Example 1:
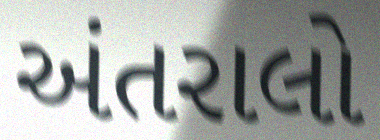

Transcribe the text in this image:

અંતરાલો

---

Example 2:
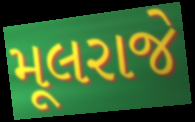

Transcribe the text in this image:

મૂલરાજે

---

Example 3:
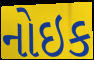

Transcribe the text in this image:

નોઇક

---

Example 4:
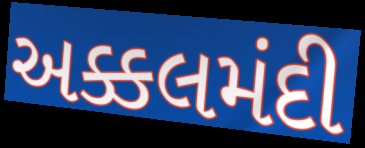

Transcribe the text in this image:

અક્કલમંદી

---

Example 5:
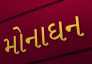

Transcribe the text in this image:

મોનાઘન